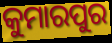
କୁମାରପୁର